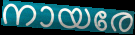
നായരേ